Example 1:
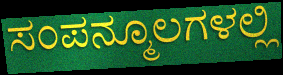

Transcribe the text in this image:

ಸಂಪನ್ಮೂಲಗಳಲ್ಲಿ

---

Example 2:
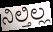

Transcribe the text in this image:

ನಿಲ್ತಿಲ್ಲ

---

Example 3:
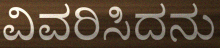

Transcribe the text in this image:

ವಿವರಿಸಿದನು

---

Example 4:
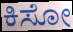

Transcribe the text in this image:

ಕಿಸೋ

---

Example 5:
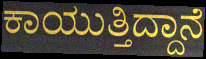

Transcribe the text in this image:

ಕಾಯುತ್ತಿದ್ದಾನೆ